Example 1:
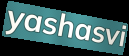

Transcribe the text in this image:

yashasvi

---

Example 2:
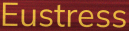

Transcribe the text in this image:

Eustress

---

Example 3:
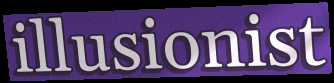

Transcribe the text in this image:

illusionist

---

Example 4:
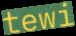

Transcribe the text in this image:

tewi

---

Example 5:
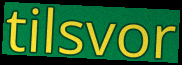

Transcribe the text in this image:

tilsvor